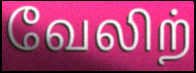
வேலிற்